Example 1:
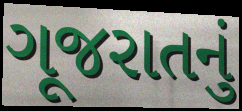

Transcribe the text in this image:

ગૂજરાતનું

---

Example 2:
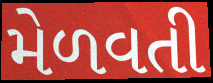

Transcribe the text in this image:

મેળવતી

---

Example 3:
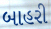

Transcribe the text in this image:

બાહરી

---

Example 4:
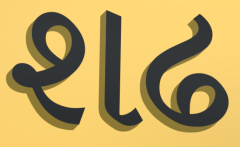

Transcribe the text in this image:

શઢ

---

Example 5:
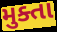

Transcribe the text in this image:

મુક્તા